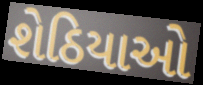
શેઠિયાઓ